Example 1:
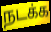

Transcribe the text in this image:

நடக்க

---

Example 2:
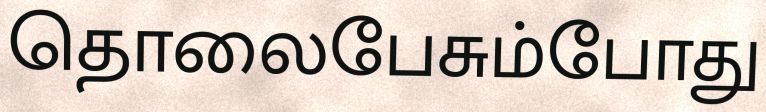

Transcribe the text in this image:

தொலைபேசும்போது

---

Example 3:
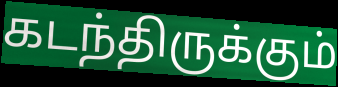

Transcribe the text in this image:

கடந்திருக்கும்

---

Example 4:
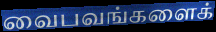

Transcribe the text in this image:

வைபவங்களைக்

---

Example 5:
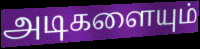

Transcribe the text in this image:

அடிகளையும்